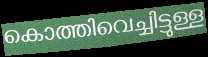
കൊത്തിവെച്ചിട്ടുള്ള